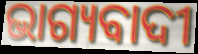
ଭାଗ୍ୟବାଦୀ